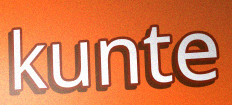
kunte